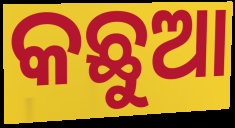
କଛୁଆ